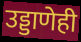
उड्डाणेही